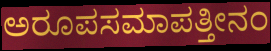
ಅರೂಪಸಮಾಪತ್ತೀನಂ